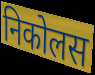
निकोलस